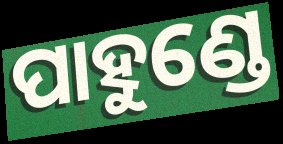
ପାହୁଣ୍ଡେ